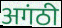
अगंठी